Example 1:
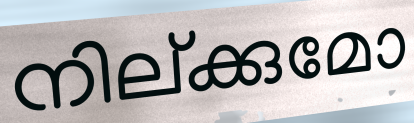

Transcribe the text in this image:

നില്ക്കുമോ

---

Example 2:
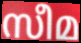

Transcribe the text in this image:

സീമ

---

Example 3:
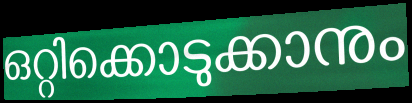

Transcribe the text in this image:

ഒറ്റിക്കൊടുക്കാനും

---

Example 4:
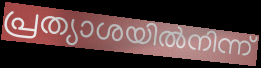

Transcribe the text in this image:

പ്രത്യാശയിൽനിന്ന്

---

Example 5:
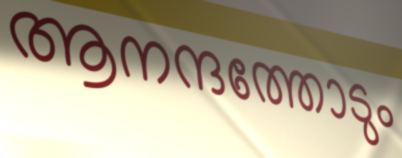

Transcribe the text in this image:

ആനന്ദത്തോടും